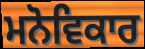
ਮਨੋਵਿਕਾਰ